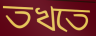
তখতে